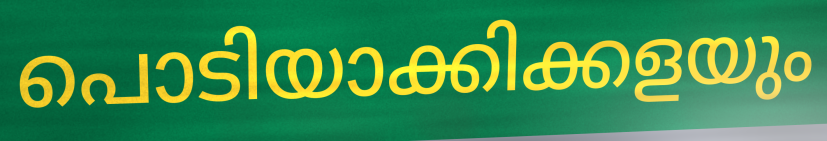
പൊടിയാക്കിക്കളയും